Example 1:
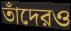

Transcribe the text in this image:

তাঁদেরও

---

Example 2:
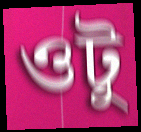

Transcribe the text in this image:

ওটু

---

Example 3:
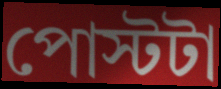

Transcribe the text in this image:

পোস্টটা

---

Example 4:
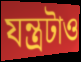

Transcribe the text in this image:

যন্ত্রটাও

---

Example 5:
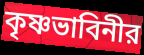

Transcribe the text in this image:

কৃষ্ণভাবিনীর